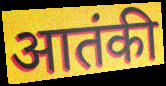
आतंकी